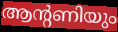
ആന്റണിയും